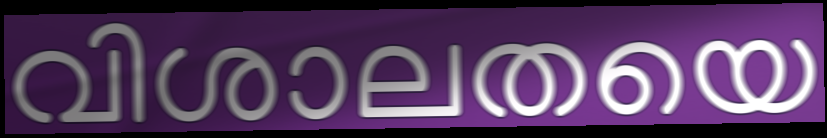
വിശാലതയെ